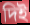
দিই